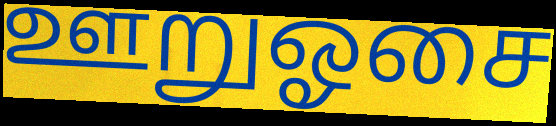
ஊறுஓசை